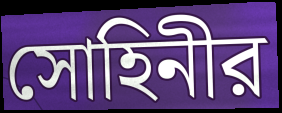
সোহিনীর